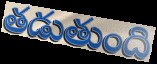
తడుతుంది